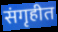
संगृहीत